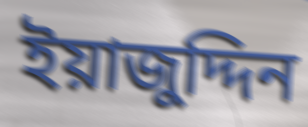
ইয়াজুদ্দিন